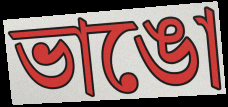
ভাঙো